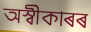
অস্বীকাৰৰ